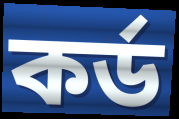
কৰ্ড